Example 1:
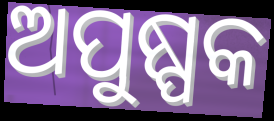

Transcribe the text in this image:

ଅପୁଷ୍ପକ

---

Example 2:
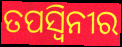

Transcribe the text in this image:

ତପସ୍ୱିନୀର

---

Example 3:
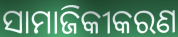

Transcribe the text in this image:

ସାମାଜିକୀକରଣ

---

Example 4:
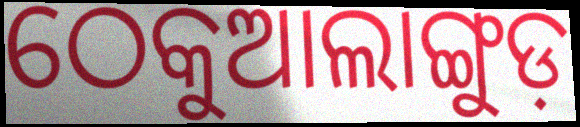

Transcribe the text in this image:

ଠେକୁଆଲାଙ୍ଗୁଡ଼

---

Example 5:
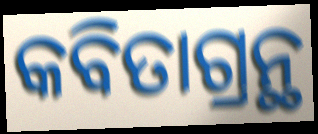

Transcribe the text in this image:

କବିତାଗ୍ରନ୍ଥ